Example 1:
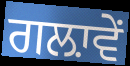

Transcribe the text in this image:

ਗਲ਼ਾਵੇਂ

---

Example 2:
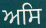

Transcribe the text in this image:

ਅਸਿ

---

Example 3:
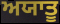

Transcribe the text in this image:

ਅਯਾਤੂ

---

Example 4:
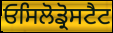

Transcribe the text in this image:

ਓਸਿਲੋਡ੍ਰੋਸਟੈਟ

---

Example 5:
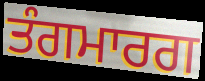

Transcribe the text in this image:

ਤੰਗਮਾਰਗ